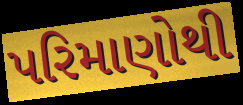
પરિમાણોથી